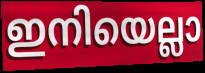
ഇനിയെല്ലാ